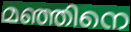
മഞ്ഞിനെ